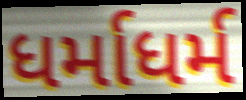
ધર્માધર્મ